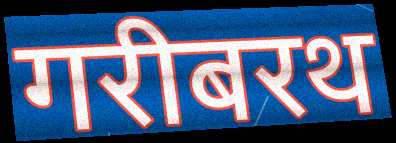
गरीबरथ